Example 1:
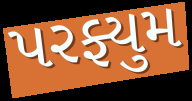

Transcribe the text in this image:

પરફ્યુમ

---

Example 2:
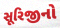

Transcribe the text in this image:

સૂરિજીનો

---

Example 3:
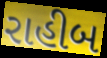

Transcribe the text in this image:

રાહીબ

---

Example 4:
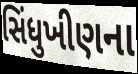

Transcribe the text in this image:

સિંધુખીણના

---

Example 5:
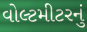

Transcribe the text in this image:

વોલ્ટમીટરનું